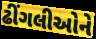
ઢીંગલીઓને